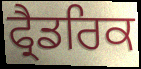
ਫ੍ਰੈਡਰਿਕ